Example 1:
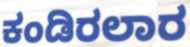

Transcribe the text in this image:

ಕಂಡಿರಲಾರ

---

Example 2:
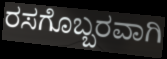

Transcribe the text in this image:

ರಸಗೊಬ್ಬರವಾಗಿ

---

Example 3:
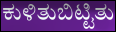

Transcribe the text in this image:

ಕುಳಿತುಬಿಟ್ಟಿತು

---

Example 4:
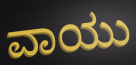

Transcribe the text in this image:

ವಾಯು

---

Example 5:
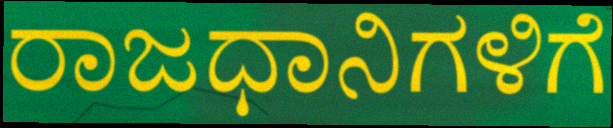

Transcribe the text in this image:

ರಾಜಧಾನಿಗಳಿಗೆ